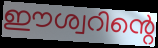
ഈശ്വറിന്റെ